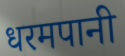
धरमपानी